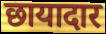
छायादार